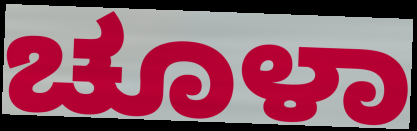
ಚೂಳಾ